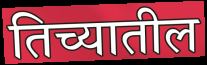
तिच्यातील